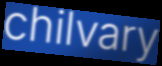
chilvary